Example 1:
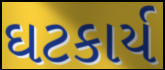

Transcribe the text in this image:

ઘટકાર્ય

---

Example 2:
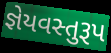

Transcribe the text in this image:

જ્ઞેયવસ્તુરૂપ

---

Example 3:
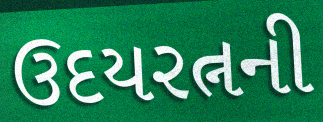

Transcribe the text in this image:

ઉદયરત્નની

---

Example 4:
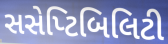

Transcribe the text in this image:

સસેપ્ટિબિલિટી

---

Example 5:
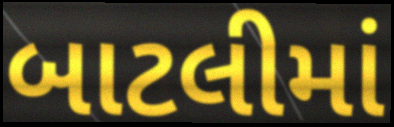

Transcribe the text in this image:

બાટલીમાં